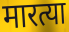
मारत्या